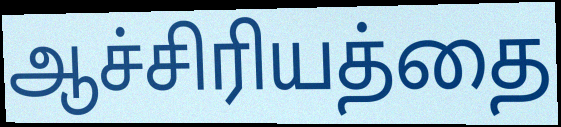
ஆச்சிரியத்தை